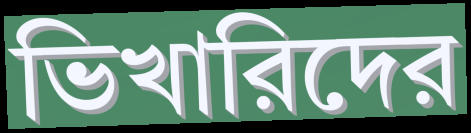
ভিখারিদের